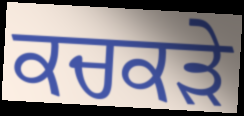
ਕਚਕੜੇ